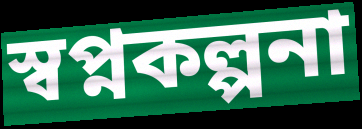
স্বপ্নকল্পনা